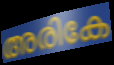
അരികേ